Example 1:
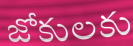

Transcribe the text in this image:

జోకులకు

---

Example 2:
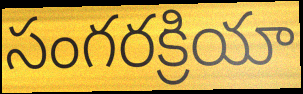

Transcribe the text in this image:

సంగరక్రియా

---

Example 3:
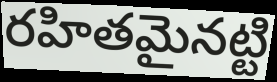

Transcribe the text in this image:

రహితమైనట్టి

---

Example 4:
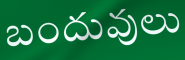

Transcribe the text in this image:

బందువులు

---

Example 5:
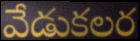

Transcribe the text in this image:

వేడుకలర